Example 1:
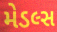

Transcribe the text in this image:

મેડલ્સ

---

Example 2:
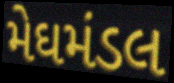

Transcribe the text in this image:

મેઘમંડલ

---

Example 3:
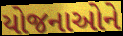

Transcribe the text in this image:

યોજનાઓને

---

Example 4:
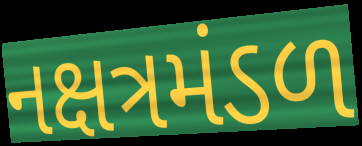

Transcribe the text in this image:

નક્ષત્રમંડળ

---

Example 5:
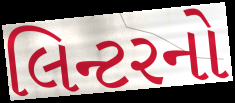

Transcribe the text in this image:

લિન્ટરનો